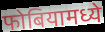
फोबियामध्ये